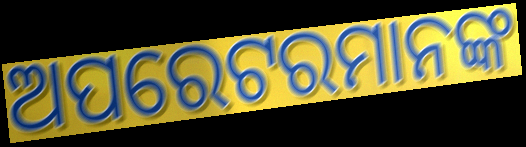
ଅପରେଟରମାନଙ୍କ